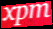
xpm